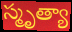
స్మృత్యా